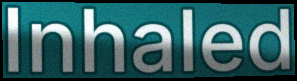
Inhaled